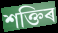
শক্তিৰ